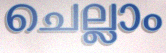
ചെല്ലാം